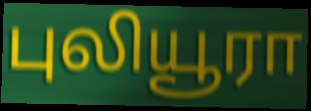
புலியூரா